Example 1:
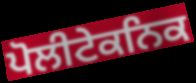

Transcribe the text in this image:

ਪੋਲੀਟੇਕਨਿਕ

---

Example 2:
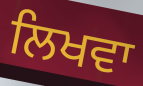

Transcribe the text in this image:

ਲਿਖਵਾ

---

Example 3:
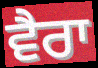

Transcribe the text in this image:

ਵੈਰਾ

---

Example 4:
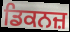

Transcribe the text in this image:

ਡਿਕਨਜ਼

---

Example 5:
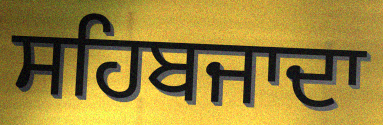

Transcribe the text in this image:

ਸਹਿਬਜਾਦਾ